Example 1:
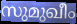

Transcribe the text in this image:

സുമുഖീം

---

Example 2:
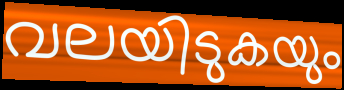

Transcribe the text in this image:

വലയിടുകയും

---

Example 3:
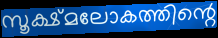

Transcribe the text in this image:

സൂക്ഷ്മലോകത്തിന്റെ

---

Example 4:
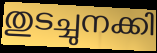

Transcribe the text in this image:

തുടച്ചുനക്കി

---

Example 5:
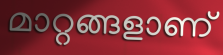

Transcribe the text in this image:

മാറ്റങ്ങളാണ്